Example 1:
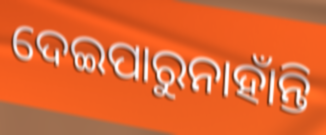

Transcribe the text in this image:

ଦେଇପାରୁନାହାଁନ୍ତି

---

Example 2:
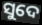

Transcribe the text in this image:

ସୁଦେ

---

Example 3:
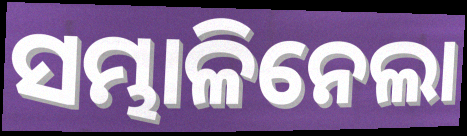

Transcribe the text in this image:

ସମ୍ଭାଳିନେଲା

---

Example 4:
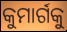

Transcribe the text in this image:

କୁମାର୍ଗକୁ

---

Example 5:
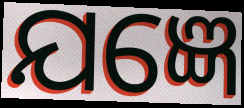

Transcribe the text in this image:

ଯଜ୍ଞେ